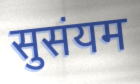
सुसंयम